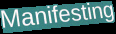
Manifesting